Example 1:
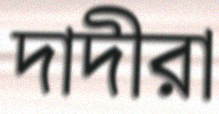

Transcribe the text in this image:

দাদীরা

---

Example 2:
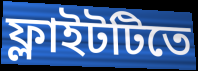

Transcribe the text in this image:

ফ্লাইটটিতে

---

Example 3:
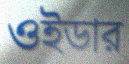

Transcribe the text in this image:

ওইডার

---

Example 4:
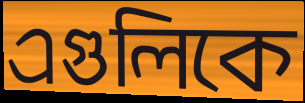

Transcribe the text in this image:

এগুলিকে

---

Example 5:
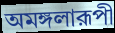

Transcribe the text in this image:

অমঙ্গলারূপী